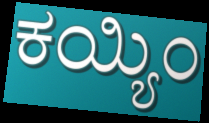
ಕಯ್ಯಿಂ